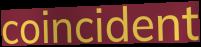
coincident